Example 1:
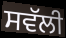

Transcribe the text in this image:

ਸਵੱਲੀ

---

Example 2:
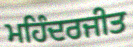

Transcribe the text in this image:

ਮਹਿੰਦਰਜੀਤ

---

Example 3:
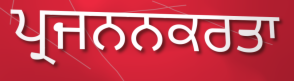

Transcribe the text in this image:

ਪ੍ਰਜਨਨਕਰਤਾ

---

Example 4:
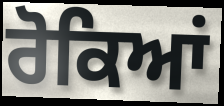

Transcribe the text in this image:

ਰੋਕਿਆਂ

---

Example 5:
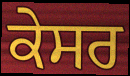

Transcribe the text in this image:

ਕੇਸਰ